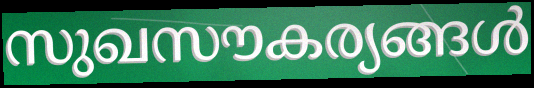
സുഖസൗകര്യങ്ങൾ